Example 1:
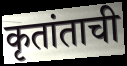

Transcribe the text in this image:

कृतांताची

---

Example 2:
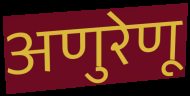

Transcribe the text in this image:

अणुरेणू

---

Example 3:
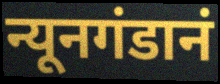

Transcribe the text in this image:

न्यूनगंडानं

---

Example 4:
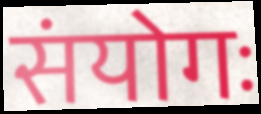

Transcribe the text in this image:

संयोगः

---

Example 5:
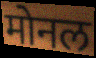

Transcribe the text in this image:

मोनल